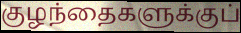
குழந்தைகளுக்குப்